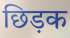
छिड़क